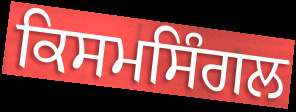
ਕਿਸਮਸਿੰਗਲ